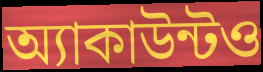
অ্যাকাউন্টও